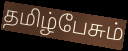
தமிழ்பேசும்